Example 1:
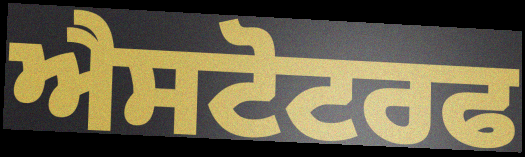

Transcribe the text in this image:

ਐਸਟੋਟਰਫ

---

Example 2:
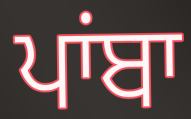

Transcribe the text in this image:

ਪਾਂਬਾ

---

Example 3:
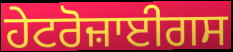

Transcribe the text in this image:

ਹੇਟਰੋਜ਼ਾਈਗਸ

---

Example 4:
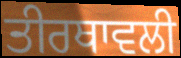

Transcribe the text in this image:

ਤੀਰਥਾਵਲੀ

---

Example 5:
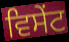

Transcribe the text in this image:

ਵਿਸੇਂਟ